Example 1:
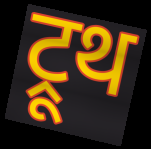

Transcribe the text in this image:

ट्रूथ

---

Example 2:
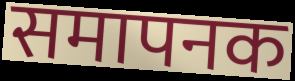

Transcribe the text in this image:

समापनक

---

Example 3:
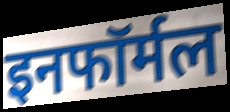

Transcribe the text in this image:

इनफॉर्मल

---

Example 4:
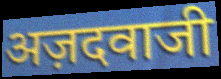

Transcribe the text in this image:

अज़दवाजी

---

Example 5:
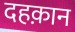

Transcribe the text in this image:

दहक़ान